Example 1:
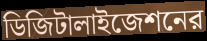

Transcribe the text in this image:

ডিজিটালাইজেশনের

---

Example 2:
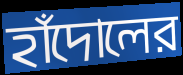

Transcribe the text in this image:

হাঁদোলের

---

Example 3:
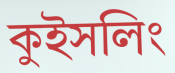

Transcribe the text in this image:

কুইসলিং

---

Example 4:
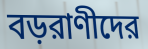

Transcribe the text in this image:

বড়রাণীদের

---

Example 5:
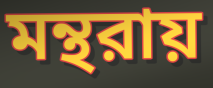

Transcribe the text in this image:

মন্থরায়